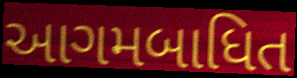
આગમબાધિત